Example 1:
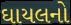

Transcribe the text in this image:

ઘાયલનો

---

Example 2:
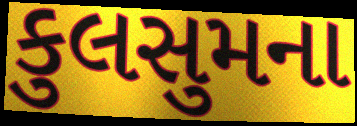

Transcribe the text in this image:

કુલસુમના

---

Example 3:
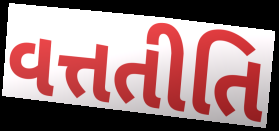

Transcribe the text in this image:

વત્તતીતિ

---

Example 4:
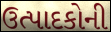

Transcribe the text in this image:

ઉત્પાદકોની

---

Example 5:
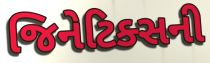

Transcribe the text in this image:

જિનેટિક્સની